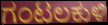
ಗಂಟಲಕುಳಿ